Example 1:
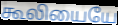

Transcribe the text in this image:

கூலியையே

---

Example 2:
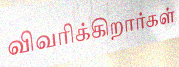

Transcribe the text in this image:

விவரிக்கிறார்கள்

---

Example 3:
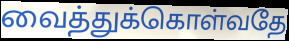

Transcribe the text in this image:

வைத்துக்கொள்வதே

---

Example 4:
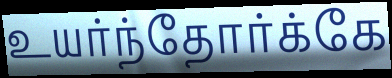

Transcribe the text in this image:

உயர்ந்தோர்க்கே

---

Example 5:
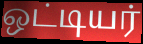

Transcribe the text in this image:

ஒட்டியர்